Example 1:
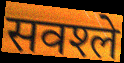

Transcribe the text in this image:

सवश्ले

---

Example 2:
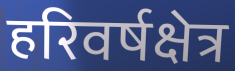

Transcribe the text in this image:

हरिवर्षक्षेत्र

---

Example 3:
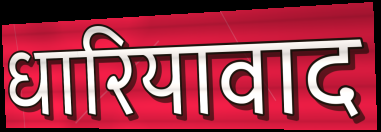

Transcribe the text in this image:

धारियावाद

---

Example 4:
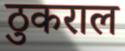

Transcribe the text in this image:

ठुकराल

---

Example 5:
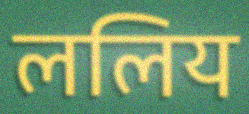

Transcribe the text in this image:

ललिय